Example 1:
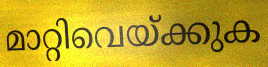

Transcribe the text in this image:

മാറ്റിവെയ്ക്കുക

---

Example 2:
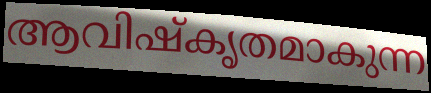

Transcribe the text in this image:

ആവിഷ്കൃതമാകുന്ന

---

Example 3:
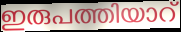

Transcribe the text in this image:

ഇരുപത്തിയാറ്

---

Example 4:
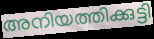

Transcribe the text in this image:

അനിയത്തിക്കുട്ടി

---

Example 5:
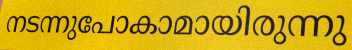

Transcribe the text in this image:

നടന്നുപോകാമായിരുന്നു